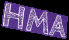
HMA